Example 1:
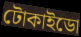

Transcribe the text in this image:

টোকাইডো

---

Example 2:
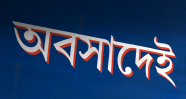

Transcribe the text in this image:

অবসাদেই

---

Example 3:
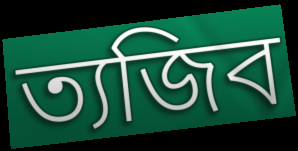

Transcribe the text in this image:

ত্যজিব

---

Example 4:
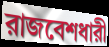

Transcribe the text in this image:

রাজবেশধারী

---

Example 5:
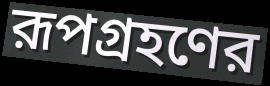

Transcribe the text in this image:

রূপগ্রহণের